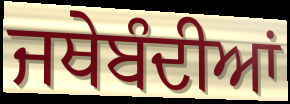
ਜਥੇਬੰਦੀਆਂ